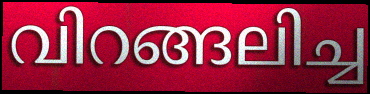
വിറങ്ങലിച്ച